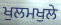
ਖੁਲਮਖੁਲੇ